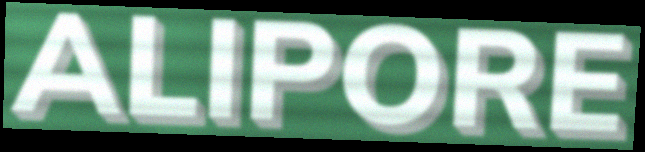
ALIPORE